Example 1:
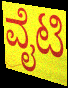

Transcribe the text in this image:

ವೈಟಿ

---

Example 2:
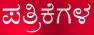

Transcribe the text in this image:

ಪತ್ರಿಕೆಗಳ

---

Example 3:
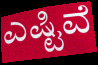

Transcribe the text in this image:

ಎಷ್ಟಿವೆ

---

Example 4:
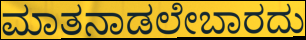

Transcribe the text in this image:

ಮಾತನಾಡಲೇಬಾರದು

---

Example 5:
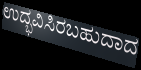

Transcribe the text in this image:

ಉದ್ಭವಿಸಿರಬಹುದಾದ